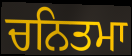
ਚਨਿਤਮਾ